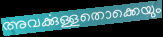
അവൎക്കുള്ളതൊക്കെയും